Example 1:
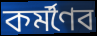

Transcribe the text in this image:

কর্মণৈব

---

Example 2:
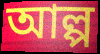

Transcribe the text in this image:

আল্প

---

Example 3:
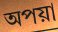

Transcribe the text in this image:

অপয়া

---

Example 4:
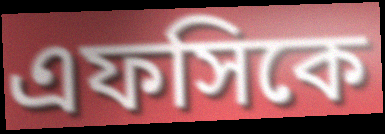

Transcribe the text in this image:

এফসিকে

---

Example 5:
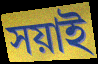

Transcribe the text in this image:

সয়াই